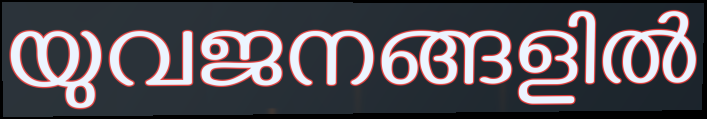
യുവജനങ്ങളിൽ